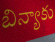
బిన్యాకు